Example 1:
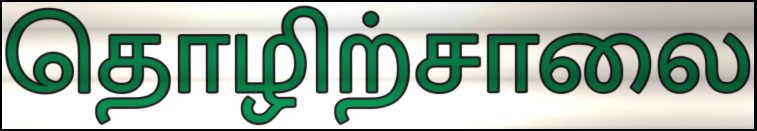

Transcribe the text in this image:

தொழிற்சாலை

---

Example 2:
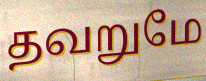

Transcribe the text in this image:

தவறுமே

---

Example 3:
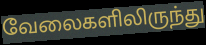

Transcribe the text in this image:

வேலைகளிலிருந்து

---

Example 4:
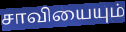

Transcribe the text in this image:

சாவியையும்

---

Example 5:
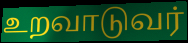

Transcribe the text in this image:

உறவாடுவர்